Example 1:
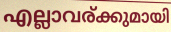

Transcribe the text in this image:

എല്ലാവര്ക്കുമായി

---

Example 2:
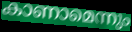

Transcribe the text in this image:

കാണാമെന്നും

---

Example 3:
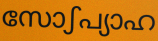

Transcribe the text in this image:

സോഽപ്യാഹ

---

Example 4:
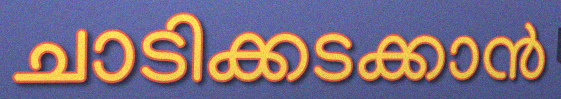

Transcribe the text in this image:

ചാടിക്കടക്കാൻ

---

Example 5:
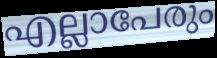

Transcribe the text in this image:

എല്ലാപേരും